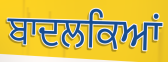
ਬਾਦਲਕਿਆਂ